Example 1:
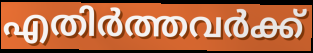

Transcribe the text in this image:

എതിർത്തവർക്ക്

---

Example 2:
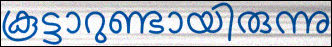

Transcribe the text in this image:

കൂട്ടാറുണ്ടായിരുന്നു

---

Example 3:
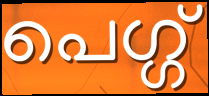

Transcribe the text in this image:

പെഗ്ഗ്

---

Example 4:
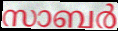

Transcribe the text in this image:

സാബർ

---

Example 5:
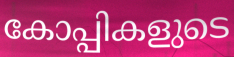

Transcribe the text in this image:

കോപ്പികളുടെ